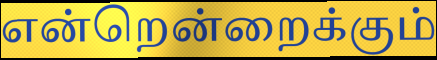
என்றென்றைக்கும்